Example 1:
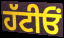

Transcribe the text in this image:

ਹੱਟੀਓਂ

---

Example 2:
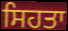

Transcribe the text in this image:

ਸਿਹਤਾ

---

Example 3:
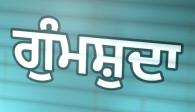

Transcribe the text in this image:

ਗੁੰਮਸ਼ੁਦਾ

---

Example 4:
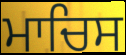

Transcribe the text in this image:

ਮਾਚਿਸ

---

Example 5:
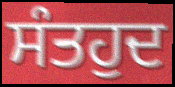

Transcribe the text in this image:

ਸੰਤਹੁਦ